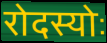
रोदस्योः